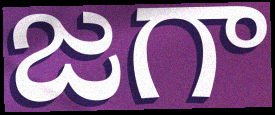
జగా